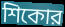
শিকোর